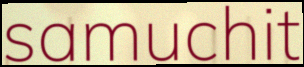
samuchit